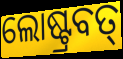
ଲୋଷ୍ଟ୍ରବତ୍